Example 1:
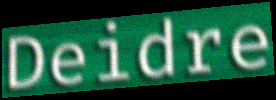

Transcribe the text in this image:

Deidre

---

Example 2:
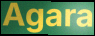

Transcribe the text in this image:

Agara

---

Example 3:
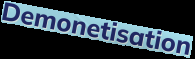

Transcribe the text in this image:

Demonetisation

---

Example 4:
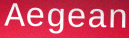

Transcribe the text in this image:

Aegean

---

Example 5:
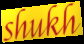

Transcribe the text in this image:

shukh